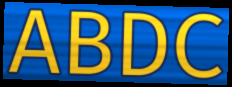
ABDC